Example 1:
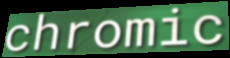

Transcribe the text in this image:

chromic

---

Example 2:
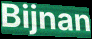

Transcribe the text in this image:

Bijnan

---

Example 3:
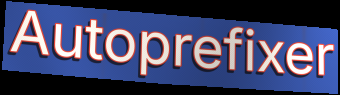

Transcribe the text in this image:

Autoprefixer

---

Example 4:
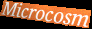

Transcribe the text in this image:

Microcosm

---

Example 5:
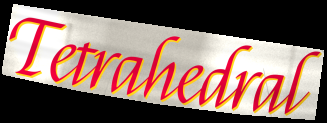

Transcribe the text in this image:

Tetrahedral